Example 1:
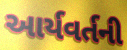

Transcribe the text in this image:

આર્યવર્તની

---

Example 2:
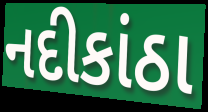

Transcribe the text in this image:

નદીકાંઠા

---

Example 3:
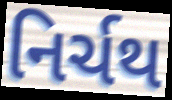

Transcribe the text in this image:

નિર્ચથ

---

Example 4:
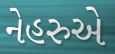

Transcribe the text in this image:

નેહરુએ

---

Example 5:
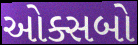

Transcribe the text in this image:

ઓક્સબો